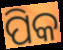
ପିକ